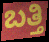
ಬತ್ತಿ